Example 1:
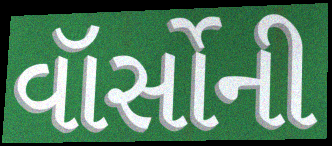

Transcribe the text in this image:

વૉર્સોની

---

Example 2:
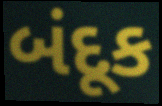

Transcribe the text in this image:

બંદૂક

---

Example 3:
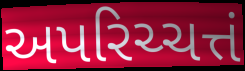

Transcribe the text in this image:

અપરિચ્ચત્તં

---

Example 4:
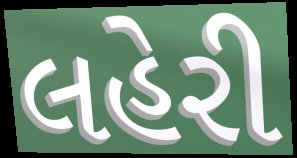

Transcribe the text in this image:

લહેરી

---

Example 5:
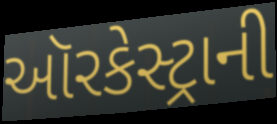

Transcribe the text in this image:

ઑરકેસ્ટ્રાની